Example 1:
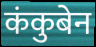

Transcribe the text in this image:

कंकुबेन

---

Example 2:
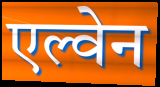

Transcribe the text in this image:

एल्वेन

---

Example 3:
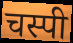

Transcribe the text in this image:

चस्पी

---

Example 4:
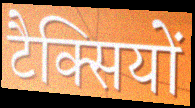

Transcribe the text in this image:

टैक्सियों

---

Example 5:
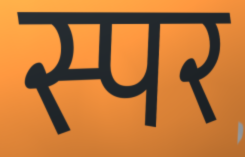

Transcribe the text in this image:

स्पर